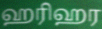
ஹரிஹர